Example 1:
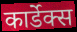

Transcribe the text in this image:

कार्डेक्स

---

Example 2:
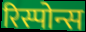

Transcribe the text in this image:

रिस्पोन्स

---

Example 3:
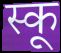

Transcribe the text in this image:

स्कू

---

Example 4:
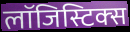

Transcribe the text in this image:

लॉजिस्टिक्‍स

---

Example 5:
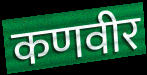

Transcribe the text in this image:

कणवीर